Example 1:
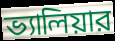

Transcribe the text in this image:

ভ্যালিয়ার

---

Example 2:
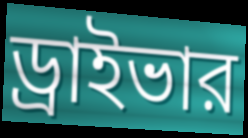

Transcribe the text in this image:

ড্রাইভার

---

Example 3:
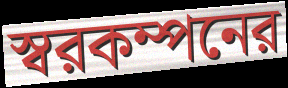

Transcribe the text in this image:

স্বরকম্পনের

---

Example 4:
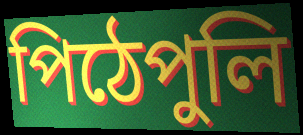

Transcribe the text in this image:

পিঠেপুলি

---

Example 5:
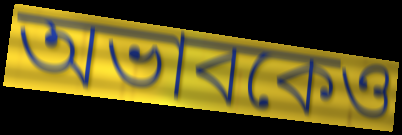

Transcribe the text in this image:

অভাবকেও